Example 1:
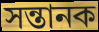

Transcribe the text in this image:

সন্তানক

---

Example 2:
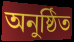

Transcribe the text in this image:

অনুষ্ঠিত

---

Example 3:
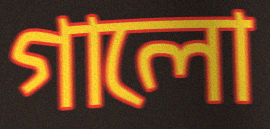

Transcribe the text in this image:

গালো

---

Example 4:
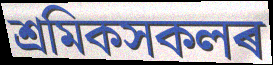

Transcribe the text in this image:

শ্ৰমিকসকলৰ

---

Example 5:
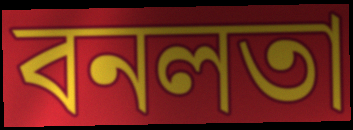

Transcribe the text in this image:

বনলতা